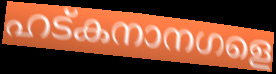
ഹട്കനാനഗളെ